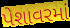
પેશાવરમાં